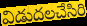
విడుదలచేసిరి